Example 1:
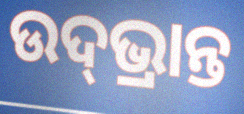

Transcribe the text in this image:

ଉଦ୍‌ଭ୍ରାନ୍ତ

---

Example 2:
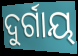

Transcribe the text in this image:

ଦୁର୍ଗାୟ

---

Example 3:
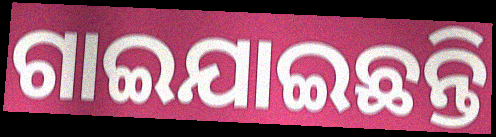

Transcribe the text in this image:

ଗାଇଯାଇଛନ୍ତି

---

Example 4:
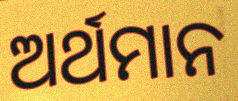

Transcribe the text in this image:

ଅର୍ଥମାନ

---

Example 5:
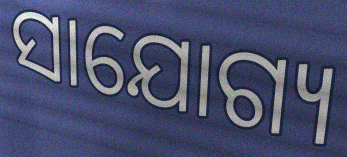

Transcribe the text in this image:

ସାଯୋଗ୍ୟ